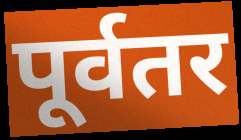
पूर्वतर